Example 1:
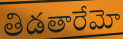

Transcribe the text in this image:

తిడతారేమో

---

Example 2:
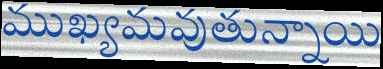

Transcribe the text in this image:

ముఖ్యమవుతున్నాయి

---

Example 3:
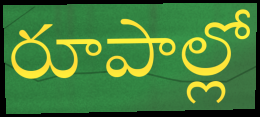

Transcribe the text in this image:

రూపాల్లో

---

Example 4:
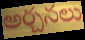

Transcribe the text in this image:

అర్చనలు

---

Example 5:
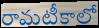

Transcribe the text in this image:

రామటీకాలో